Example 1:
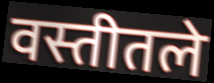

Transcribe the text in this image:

वस्तीतले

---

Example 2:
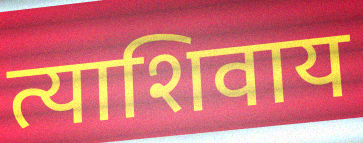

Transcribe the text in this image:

त्याशिवाय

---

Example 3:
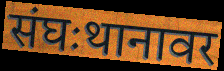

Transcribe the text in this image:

संघःथानावर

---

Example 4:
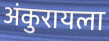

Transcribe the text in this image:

अंकुरायला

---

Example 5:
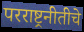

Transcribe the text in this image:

परराष्ट्रनीतीचे